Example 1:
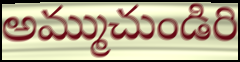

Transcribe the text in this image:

అమ్ముచుండిరి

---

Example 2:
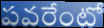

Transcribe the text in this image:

పవరేంటో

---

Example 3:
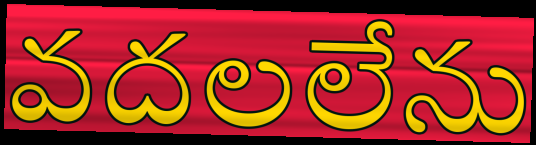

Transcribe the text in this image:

వదలలేను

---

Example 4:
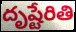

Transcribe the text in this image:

దృష్టేరితి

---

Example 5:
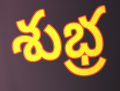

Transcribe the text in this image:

శుభ్ర